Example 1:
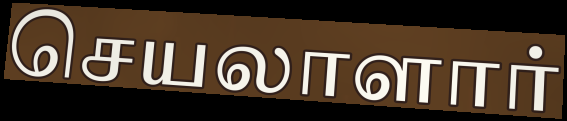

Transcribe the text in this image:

செயலாளார்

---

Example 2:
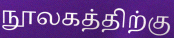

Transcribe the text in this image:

நூலகத்திற்கு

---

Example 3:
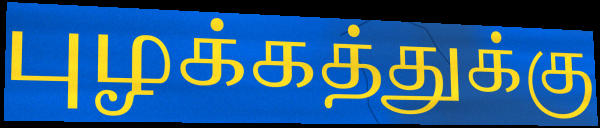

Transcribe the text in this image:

புழக்கத்துக்கு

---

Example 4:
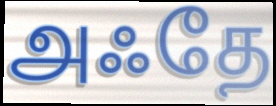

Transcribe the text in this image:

அஃதே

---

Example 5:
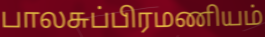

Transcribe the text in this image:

பாலசுப்பிரமணியம்